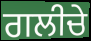
ਗਲੀਚੇ